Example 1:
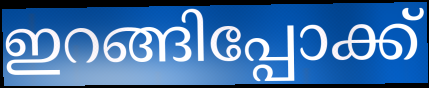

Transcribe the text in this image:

ഇറങ്ങിപ്പോക്ക്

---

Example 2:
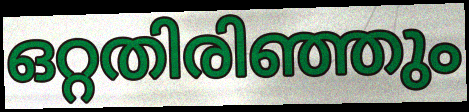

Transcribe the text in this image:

ഒറ്റതിരിഞ്ഞും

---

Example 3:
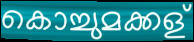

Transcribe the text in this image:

കൊച്ചുമക്കള്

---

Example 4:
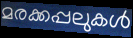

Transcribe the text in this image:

മരക്കപ്പലുകൾ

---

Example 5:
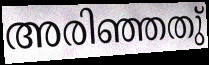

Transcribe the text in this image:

അരിഞ്ഞതു്